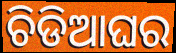
ଚିଡିଆଘର